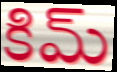
కిమ్